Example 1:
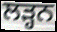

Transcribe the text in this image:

ਲੜ੍ਹਨ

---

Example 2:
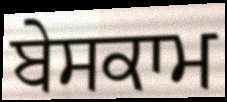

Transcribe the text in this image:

ਬੇਸਕਾਮ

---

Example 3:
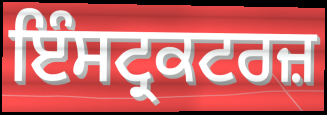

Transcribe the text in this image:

ਇੰਸਟ੍ਰਕਟਰਜ਼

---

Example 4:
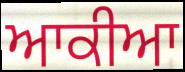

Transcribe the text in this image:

ਆਕੀਆ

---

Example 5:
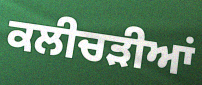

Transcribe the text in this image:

ਕਲੀਚੜੀਆਂ